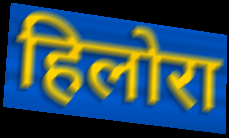
हिलोरा